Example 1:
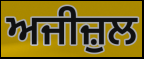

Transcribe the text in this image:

ਅਜੀਜ਼ੁਲ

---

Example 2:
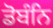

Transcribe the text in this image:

ਡੋਬੰਨਿ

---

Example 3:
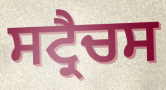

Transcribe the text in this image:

ਸਟ੍ਰੈਚਸ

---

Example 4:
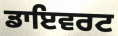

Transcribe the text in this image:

ਡਾਇਵਰਟ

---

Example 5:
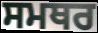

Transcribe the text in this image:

ਸਮਥਰ